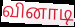
வினாடி